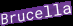
Brucella